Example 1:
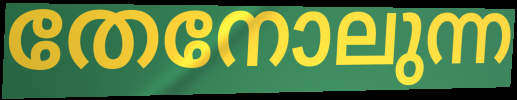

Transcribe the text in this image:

തേനോലുന്ന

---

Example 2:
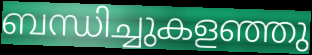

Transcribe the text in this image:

ബന്ധിച്ചുകളഞ്ഞു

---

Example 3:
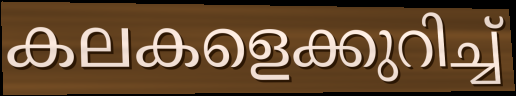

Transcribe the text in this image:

കലകളെക്കുറിച്ച്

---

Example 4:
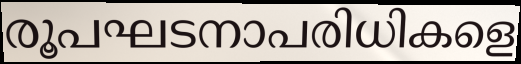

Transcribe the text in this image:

രൂപഘടനാപരിധികളെ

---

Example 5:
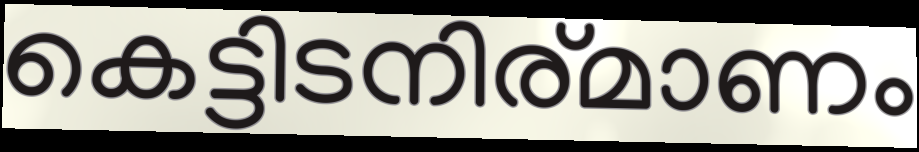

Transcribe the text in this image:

കെട്ടിടനിര്മാണം